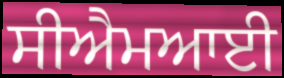
ਸੀਐਮਆਈ